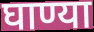
घाण्या